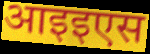
आइइएस